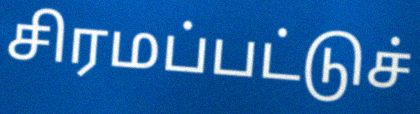
சிரமப்பட்டுச்